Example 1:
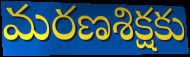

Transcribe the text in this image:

మరణశిక్షకు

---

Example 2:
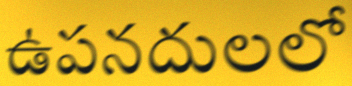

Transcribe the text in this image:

ఉపనదులలో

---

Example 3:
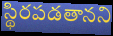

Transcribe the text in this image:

స్థిరపడతానని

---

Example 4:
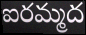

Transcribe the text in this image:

ఐరమ్మద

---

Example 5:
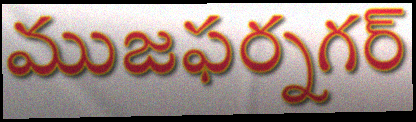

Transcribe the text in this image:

ముజఫర్నగర్